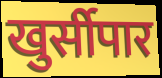
खुर्सीपार